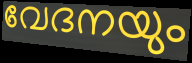
വേദനയും